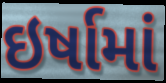
ઇર્ષામાં